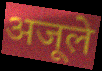
अजूले